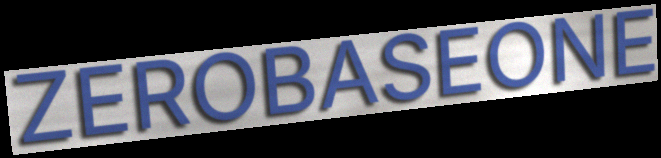
ZEROBASEONE